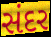
સંદર